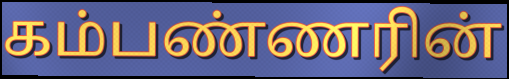
கம்பண்ணரின்